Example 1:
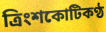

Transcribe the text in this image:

ত্রিংশকোটিকণ্ঠ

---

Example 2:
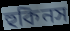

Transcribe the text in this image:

হুকিনস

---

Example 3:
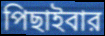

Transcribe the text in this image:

পিছাইবার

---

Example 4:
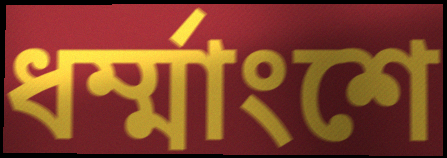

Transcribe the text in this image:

ধর্ম্মাংশে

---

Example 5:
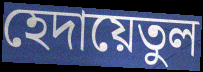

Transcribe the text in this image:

হেদায়েতুল